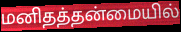
மனிதத்தன்மையில்